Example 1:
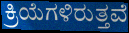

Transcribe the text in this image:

ಕ್ರಿಯೆಗಳಿರುತ್ತವೆ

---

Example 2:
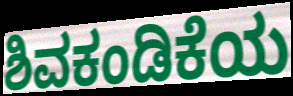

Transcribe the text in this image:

ಶಿವಕಂಡಿಕೆಯ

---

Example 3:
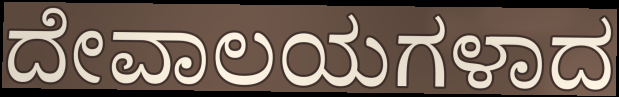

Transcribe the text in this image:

ದೇವಾಲಯಗಳಾದ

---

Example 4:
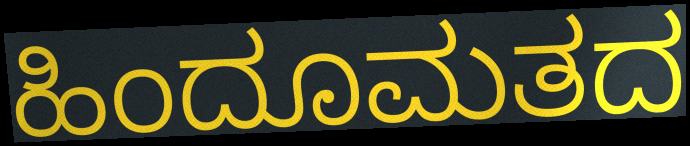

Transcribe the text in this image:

ಹಿಂದೂಮತದ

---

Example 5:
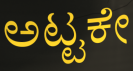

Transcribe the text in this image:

ಅಟ್ಟಕೇ